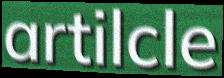
artilcle